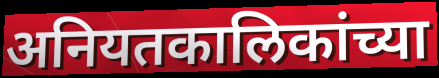
अनियतकालिकांच्या